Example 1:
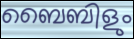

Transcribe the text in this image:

ബൈബിളും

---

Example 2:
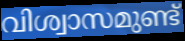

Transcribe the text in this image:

വിശ്വാസമുണ്ട്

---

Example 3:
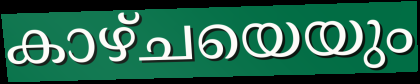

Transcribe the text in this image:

കാഴ്ചയെയും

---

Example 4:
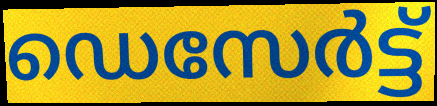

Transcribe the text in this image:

ഡെസേർട്ട്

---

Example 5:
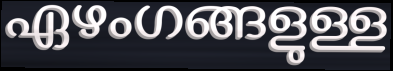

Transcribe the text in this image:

ഏഴംഗങ്ങളുള്ള